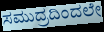
ಸಮುದ್ರದಿಂದಲೇ